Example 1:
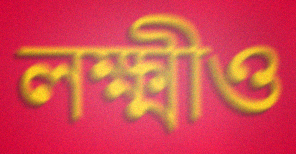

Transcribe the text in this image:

লক্ষ্মীও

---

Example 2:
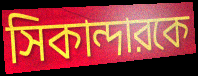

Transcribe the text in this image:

সিকান্দারকে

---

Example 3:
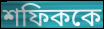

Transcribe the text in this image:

শফিককে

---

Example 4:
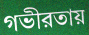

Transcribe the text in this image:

গভীরতায়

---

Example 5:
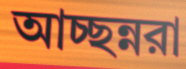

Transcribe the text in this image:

আচ্ছন্নরা